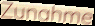
Zunahme